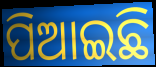
ପିଆଇଛି